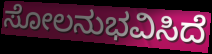
ಸೋಲನುಭವಿಸಿದೆ